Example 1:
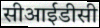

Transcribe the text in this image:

सीआईडीसी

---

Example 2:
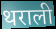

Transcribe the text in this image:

थराली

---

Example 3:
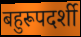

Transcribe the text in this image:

बहुरूपदर्शी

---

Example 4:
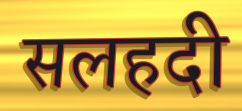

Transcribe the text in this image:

सलहदी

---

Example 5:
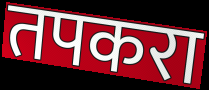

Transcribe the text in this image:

तपकरा